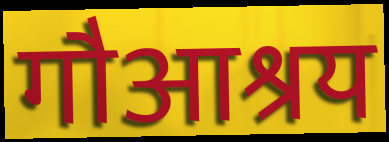
गौआश्रय